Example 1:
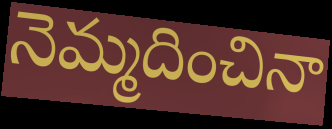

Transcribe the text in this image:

నెమ్మదించినా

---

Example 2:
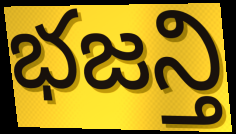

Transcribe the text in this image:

భజన్తి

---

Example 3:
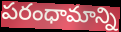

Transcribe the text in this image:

పరంధామాన్ని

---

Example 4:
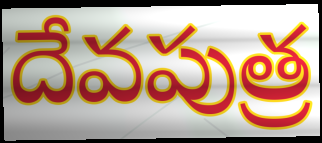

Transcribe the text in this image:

దేవపుత్ర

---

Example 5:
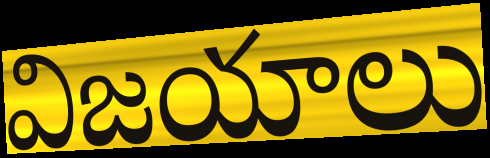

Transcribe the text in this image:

విజయాలు